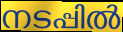
നടപ്പിൽ